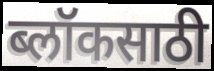
ब्लॉकसाठी